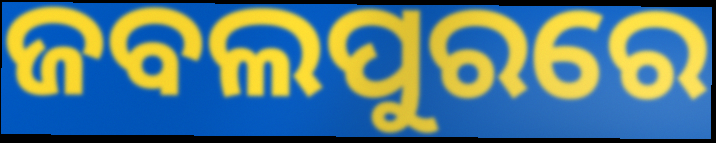
ଜବଲପୁରରେ